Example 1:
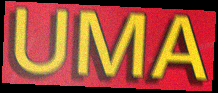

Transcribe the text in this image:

UMA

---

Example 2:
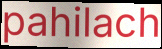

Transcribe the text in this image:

pahilach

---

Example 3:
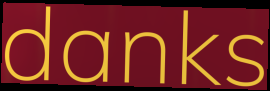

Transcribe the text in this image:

danks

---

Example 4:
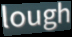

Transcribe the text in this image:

lough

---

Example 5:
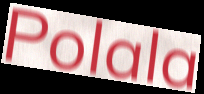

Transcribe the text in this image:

Polala